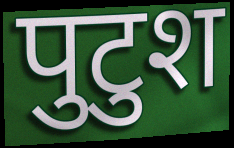
पुटुश